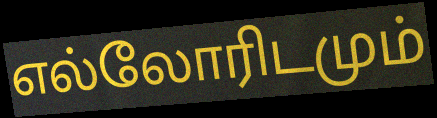
எல்லோரிடமும்